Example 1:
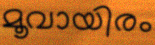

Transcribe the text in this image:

മൂവായിരം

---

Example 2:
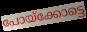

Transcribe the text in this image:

പോയ്ക്കോട്ടെ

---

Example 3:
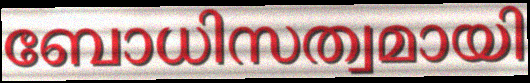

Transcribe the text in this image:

ബോധിസത്വമായി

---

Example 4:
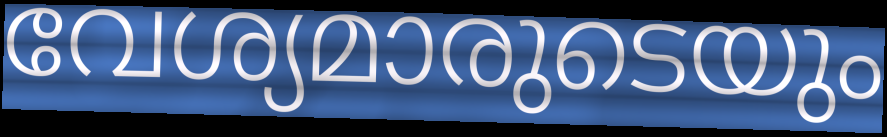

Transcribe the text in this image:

വേശ്യമാരുടെയും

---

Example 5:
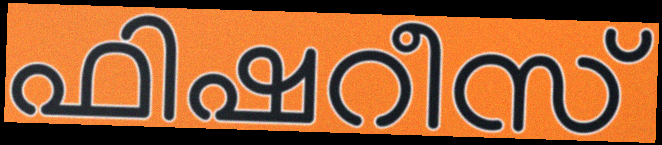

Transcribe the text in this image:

ഫിഷറീസ്